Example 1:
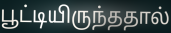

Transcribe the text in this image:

பூட்டியிருந்ததால்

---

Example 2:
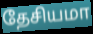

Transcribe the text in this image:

தேசியமா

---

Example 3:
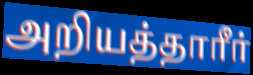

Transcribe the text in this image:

அறியத்தாரீர்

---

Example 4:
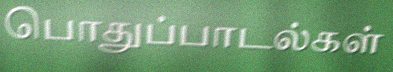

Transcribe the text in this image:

பொதுப்பாடல்கள்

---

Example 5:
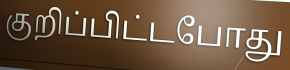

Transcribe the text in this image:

குறிப்பிட்டபோது